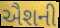
ઐશની